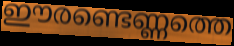
ഈരണ്ടെണ്ണത്തെ